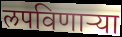
लपविणाऱ्या